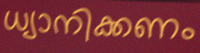
ധ്യാനിക്കണം